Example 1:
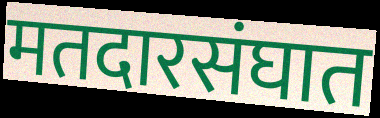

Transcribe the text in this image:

मतदारसंघात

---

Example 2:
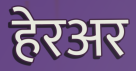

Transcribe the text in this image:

हेरअर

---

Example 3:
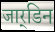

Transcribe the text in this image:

जार्डिन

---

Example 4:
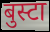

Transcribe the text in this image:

बुस्टा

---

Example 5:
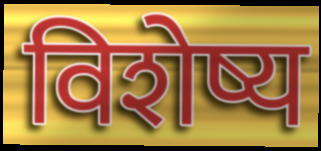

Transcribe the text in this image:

विशेष्य